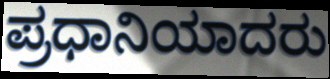
ಪ್ರಧಾನಿಯಾದರು